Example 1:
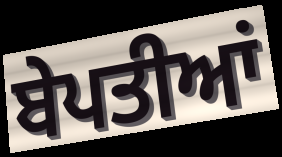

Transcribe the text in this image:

ਬੇਪਤੀਆਂ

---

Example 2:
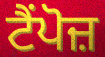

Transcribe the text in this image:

ਟੈਂਪੋਜ਼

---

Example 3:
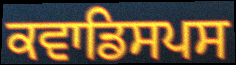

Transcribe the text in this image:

ਕਵਾਡਿਸਪਸ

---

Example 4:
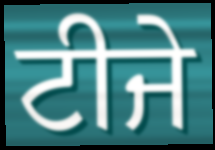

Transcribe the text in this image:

ਟੀਜੇ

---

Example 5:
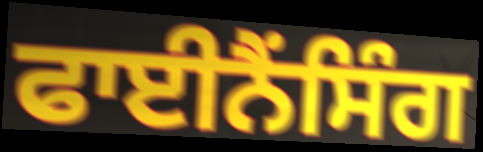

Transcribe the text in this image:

ਫਾਈਨੈਂਸਿੰਗ